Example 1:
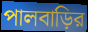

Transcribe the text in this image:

পালবাড়ির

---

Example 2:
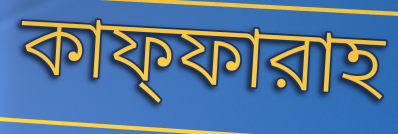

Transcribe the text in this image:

কাফ্ফারাহ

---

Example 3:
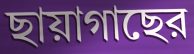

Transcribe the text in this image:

ছায়াগাছের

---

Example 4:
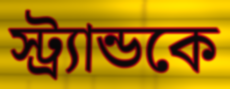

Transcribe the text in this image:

স্ট্র্যান্ডকে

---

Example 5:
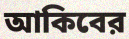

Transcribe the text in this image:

আকিবের